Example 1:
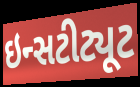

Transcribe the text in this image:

ઇન્સટીટ્યૂટ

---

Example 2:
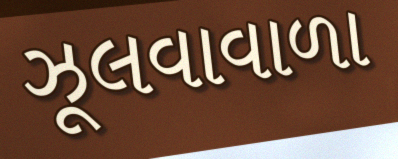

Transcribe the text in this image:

ઝૂલવાવાળા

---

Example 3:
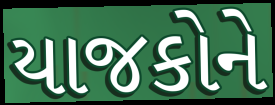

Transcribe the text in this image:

યાજકોને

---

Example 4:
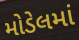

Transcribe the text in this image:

મોડેલમાં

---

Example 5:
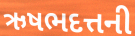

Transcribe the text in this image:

ઋષભદત્તની